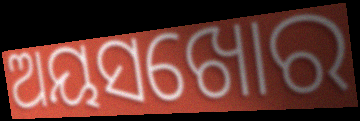
ଅୟସଖୋର